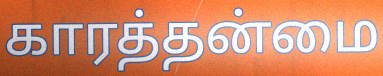
காரத்தன்மை